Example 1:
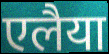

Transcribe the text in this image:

एलैया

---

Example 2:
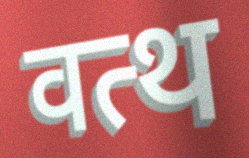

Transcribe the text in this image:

वत्थ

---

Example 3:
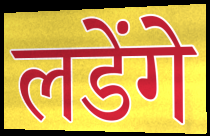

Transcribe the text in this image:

लडेंगे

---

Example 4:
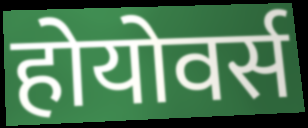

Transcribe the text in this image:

होयोवर्स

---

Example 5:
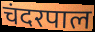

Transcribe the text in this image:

चंदरपाल